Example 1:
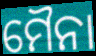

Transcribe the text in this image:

ମୈନା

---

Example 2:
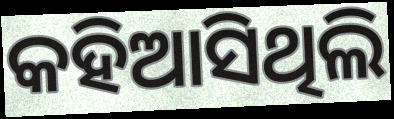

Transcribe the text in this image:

କହିଆସିଥିଲି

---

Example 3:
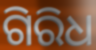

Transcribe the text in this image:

ଗିରିଧ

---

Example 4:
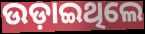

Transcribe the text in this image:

ଉଡ଼ାଇଥିଲେ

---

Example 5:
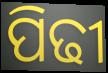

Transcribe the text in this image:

ପିଢୀ